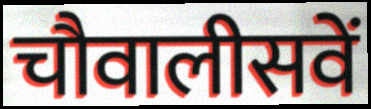
चौवालीसवें